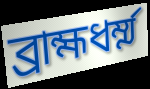
ব্রাহ্মধর্ম্ম